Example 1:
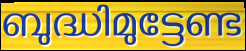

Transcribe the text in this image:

ബുദ്ധിമുട്ടേണ്ട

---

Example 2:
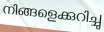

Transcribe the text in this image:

നിങ്ങളെക്കുറിച്ചു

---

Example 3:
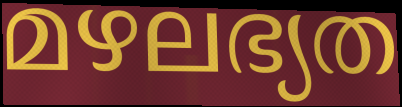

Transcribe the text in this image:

മഴലഭ്യത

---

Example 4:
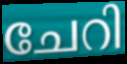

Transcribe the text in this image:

ചേറി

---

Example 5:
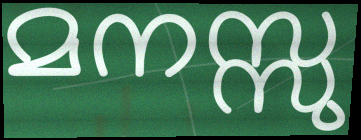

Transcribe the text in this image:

മനസ്സു